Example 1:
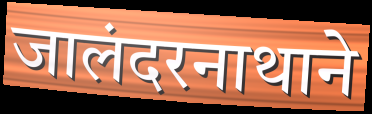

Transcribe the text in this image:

जालंदरनाथाने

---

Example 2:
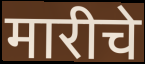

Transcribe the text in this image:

मारीचे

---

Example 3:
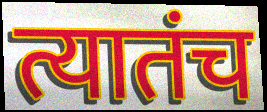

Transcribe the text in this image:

त्यातंच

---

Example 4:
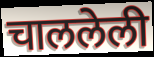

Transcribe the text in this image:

चाललेली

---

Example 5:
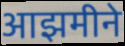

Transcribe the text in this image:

आझमीने